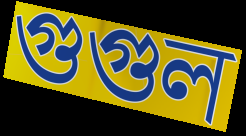
গুগুল